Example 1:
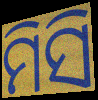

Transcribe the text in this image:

ମିସି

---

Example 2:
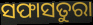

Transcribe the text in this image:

ସଫାସତୁରା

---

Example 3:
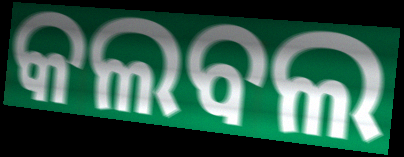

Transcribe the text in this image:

କଲବଲ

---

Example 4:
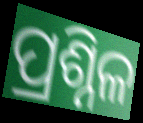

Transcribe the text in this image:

ପ୍ରଶ୍ନିଳ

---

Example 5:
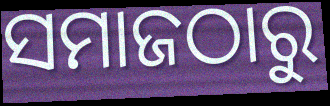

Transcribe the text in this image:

ସମାଜଠାରୁ